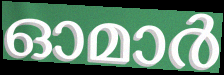
ഓമാർ